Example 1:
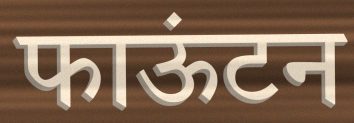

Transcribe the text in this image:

फाऊंटन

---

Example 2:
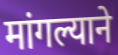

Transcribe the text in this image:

मांगल्याने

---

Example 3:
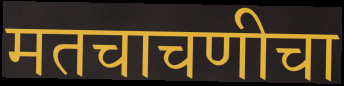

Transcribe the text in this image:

मतचाचणीचा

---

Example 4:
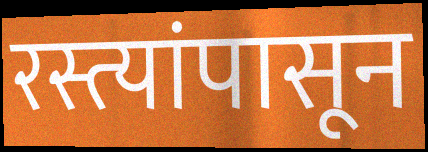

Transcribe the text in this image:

रस्त्यांपासून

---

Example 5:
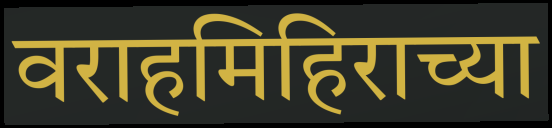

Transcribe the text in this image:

वराहमिहिराच्या